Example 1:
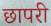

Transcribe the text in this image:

छापरी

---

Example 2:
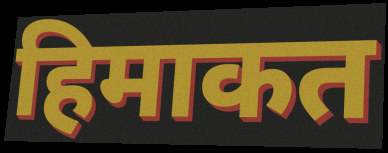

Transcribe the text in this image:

हिमाकत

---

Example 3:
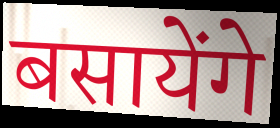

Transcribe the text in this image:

बसायेंगे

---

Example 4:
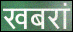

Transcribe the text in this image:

खबरां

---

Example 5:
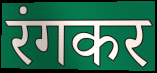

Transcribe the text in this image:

रंगकर